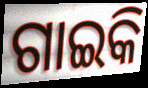
ଗାଇକି